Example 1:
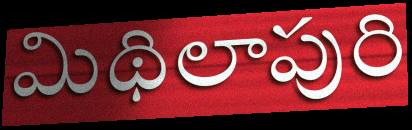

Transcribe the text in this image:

మిథిలాపురి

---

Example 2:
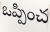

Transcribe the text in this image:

ఒప్పించ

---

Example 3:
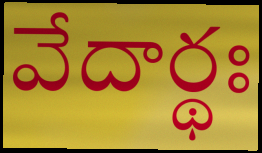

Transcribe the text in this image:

వేదార్థః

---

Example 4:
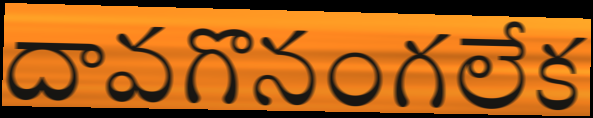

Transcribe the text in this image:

దావగొనంగలేక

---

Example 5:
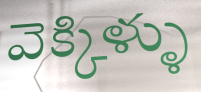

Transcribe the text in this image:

వెక్కిళ్ళు